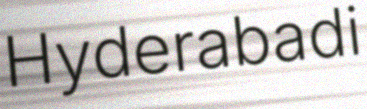
Hyderabadi